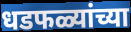
धडफळ्यांच्या